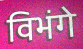
विभंगे